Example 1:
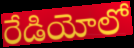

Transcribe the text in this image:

రేడియోలో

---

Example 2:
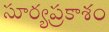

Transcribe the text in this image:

సూర్యప్రకాశం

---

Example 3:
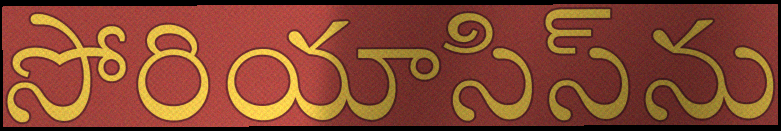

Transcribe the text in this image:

సోరియాసిస్‌ను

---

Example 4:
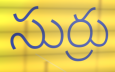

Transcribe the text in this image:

సుర్రు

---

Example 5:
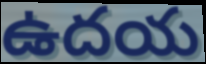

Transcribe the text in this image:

ఉదయ